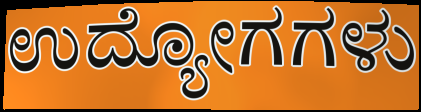
ಉದ್ಯೋಗಗಳು